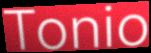
Tonio